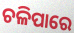
ଚଳିପାରେ